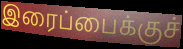
இரைப்பைக்குச்